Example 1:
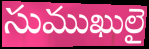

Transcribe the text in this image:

సుముఖులై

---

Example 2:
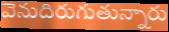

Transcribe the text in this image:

వెనుదిరుగుతున్నారు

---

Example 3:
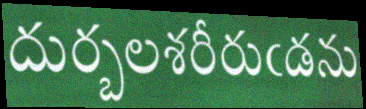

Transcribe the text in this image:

దుర్బలశరీరుఁడను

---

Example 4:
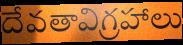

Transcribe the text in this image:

దేవతావిగ్రహాలు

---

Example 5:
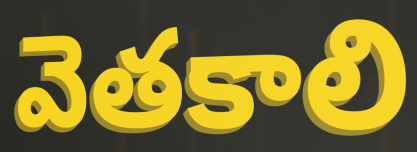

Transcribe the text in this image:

వెతకాలి